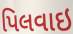
પિલવાઇ